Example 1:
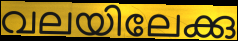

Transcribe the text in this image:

വലയിലേക്കു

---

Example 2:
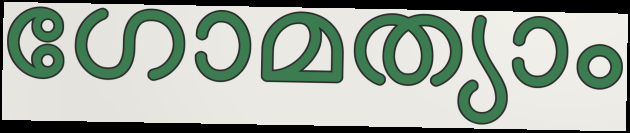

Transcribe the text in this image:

ഗോമത്യാം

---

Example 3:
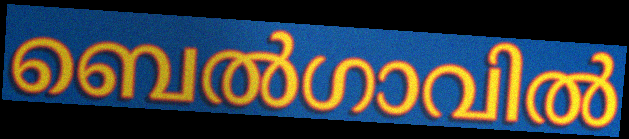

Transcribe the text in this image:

ബെൽഗാവിൽ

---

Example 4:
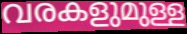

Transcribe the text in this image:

വരകളുമുള്ള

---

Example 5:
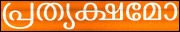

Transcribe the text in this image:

പ്രത്യക്ഷമോ